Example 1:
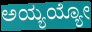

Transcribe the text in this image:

ಅಯ್ಯಯ್ಯೋ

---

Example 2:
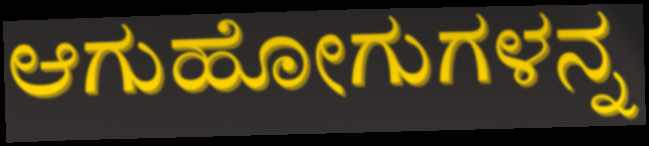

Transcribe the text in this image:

ಆಗುಹೋಗುಗಳನ್ನ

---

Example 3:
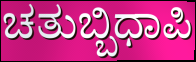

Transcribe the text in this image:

ಚತುಬ್ಬಿಧಾಪಿ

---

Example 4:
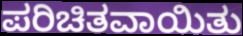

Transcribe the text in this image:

ಪರಿಚಿತವಾಯಿತು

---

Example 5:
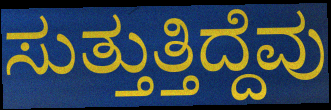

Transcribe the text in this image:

ಸುತ್ತುತ್ತಿದ್ದೆವು